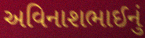
અવિનાશભાઈનું